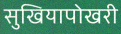
सुखियापोखरी